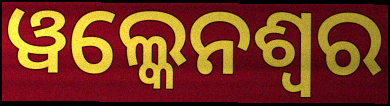
ୱଲ୍କେନଶ୍ୱର